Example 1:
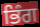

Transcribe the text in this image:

ਭਿੰਗ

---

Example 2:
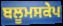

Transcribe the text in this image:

ਬਲੂਮਸਕੇਪ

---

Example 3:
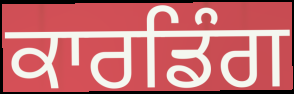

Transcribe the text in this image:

ਕਾਰਡਿੰਗ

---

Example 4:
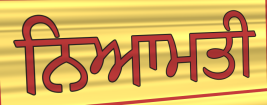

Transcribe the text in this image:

ਨਿਆਮਤੀ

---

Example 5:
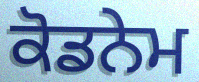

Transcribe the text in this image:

ਕੋਡਨੇਮ